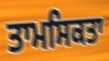
ਤਾਮਸਿਕਤਾ